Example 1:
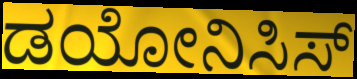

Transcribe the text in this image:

ಡಯೋನಿಸಿಸ್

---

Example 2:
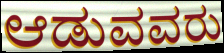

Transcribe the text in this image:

ಆಡುವವರು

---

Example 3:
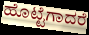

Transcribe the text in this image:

ಹೊಟ್ಟೆಗಾದರೆ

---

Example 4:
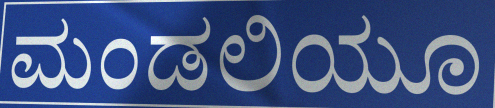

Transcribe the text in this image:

ಮಂಡಲಿಯೂ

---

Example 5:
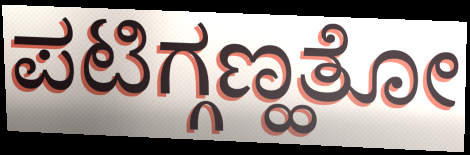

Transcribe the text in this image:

ಪಟಿಗ್ಗಣ್ಹತೋ